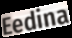
Eedina